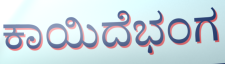
ಕಾಯಿದೆಭಂಗ